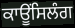
ਕਾਊਂਸਿਲੰਗ